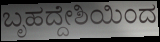
ಬೃಹದ್ದೇಶಿಯಿಂದ